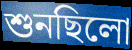
শুনছিলো